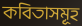
কবিতাসমূহ